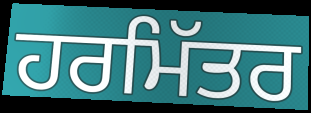
ਹਰਮਿੱਤਰ